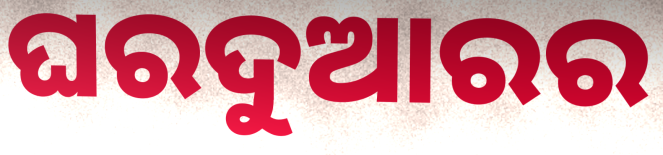
ଘରଦୁଆରର